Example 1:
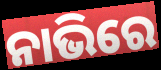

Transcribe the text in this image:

ନାଭିରେ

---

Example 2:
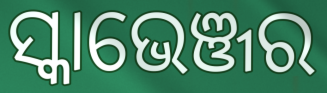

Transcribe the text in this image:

ସ୍କାଭେଞ୍ଜର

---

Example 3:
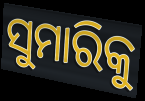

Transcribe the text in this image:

ସୁମାରିକୁ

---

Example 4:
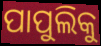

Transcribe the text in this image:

ପାପୁଲିକୁ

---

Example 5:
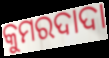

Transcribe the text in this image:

କୁମରଦାଦା